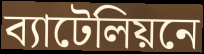
ব্যাটেলিয়নে